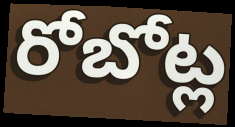
రోబోట్ల